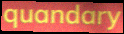
quandary